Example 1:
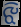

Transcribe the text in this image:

ଝି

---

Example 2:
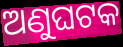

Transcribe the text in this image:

ଅଣୁଘଟକ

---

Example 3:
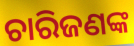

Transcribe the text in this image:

ଚାରିଜଣଙ୍କ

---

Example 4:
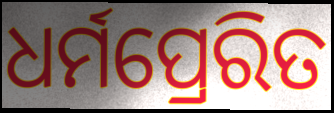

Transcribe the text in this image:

ଧର୍ମପ୍ରେରିତ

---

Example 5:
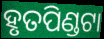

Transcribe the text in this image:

ହୃତପିଣ୍ଡଟା